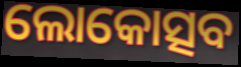
ଲୋକୋତ୍ସବ